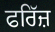
ਫਰਿੱਜ਼